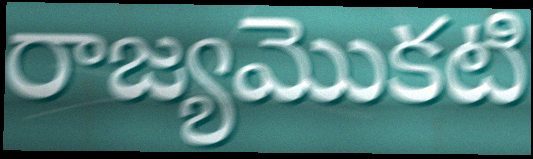
రాజ్యమొకటి